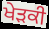
ਖੇੜਕੀ